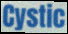
Cystic